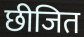
छीजित